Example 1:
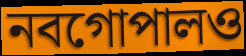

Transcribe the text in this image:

নবগোপালও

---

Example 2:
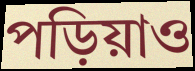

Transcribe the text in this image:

পড়িয়াও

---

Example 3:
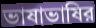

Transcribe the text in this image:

ভাষাভাষির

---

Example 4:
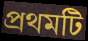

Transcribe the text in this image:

প্রথমটি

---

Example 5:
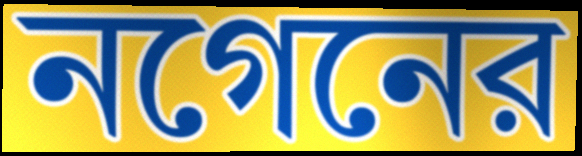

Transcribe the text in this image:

নগেনের